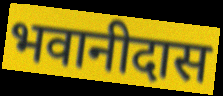
भवानीदास